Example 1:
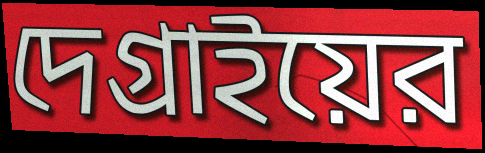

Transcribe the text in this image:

দেগ্রাইয়ের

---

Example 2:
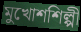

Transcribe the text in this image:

মুখোশশিল্পী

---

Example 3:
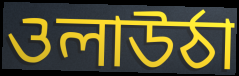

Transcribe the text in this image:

ওলাউঠা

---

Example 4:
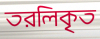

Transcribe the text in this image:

তরলিকৃত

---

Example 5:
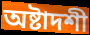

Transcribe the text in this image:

অষ্টাদশী